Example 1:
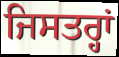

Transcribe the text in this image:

ਜਿਸਤਰ੍ਹਾਂ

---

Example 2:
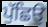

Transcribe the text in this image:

ਪੁੱਛਿਉ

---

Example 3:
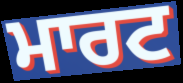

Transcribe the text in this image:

ਮਾਰਟ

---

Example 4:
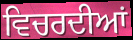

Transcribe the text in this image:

ਵਿਚਰਦੀਆਂ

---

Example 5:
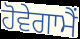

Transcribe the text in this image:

ਹੋਵੇਗਾਮੈਂ